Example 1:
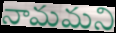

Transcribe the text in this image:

నామమని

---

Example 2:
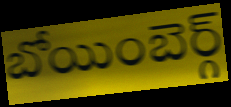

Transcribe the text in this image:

బోయింబెర్గ్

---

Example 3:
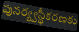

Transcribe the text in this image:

పునర్య్వస్థీకరణకు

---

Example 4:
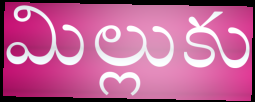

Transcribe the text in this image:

మిల్లుకు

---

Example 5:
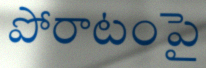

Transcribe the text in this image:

పోరాటంపై